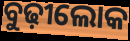
ବୁଢ଼ୀଲୋକ